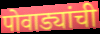
पोवाड्यांची